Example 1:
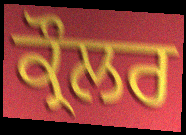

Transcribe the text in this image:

ਕ੍ਰੌਲਰ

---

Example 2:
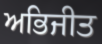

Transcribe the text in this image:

ਅਭਿਜੀਤ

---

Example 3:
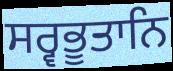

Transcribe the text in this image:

ਸਰ੍ਵਭੂਤਾਨਿ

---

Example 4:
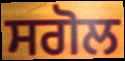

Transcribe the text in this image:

ਸਗੋਲ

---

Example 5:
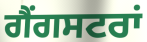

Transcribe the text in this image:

ਗੈਂਗਸਟਰਾਂ